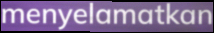
menyelamatkan